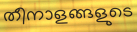
തീനാളങ്ങളുടെ